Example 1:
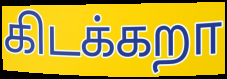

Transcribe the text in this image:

கிடக்கறா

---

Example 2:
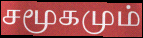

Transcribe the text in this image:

சமூகமும்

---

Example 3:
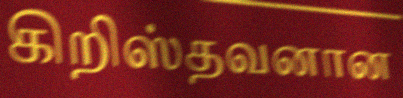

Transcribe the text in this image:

கிறிஸ்தவனான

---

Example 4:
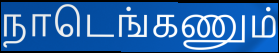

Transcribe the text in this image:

நாடெங்கணும்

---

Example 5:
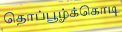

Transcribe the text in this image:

தொப்பூழ்க்கொடி